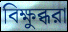
বিক্ষুব্ধরা